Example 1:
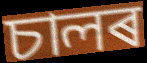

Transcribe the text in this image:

চালৰ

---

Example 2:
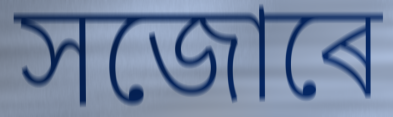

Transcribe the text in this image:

সজোৰে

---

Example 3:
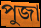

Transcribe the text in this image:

পুজা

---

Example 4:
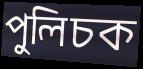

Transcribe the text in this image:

পুলিচক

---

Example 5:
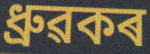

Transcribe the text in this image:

ধ্ৰুৱকৰ